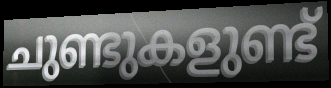
ചുണ്ടുകളുണ്ട്